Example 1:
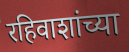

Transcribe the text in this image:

रहिवाशांच्या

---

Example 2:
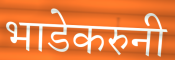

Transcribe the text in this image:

भाडेकरुनी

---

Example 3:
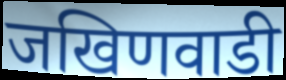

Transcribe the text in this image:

जखिणवाडी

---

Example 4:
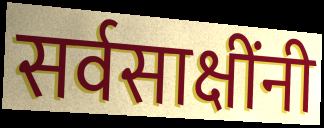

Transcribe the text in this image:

सर्वसाक्षींनी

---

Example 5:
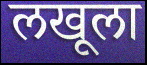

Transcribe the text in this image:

लखूला